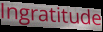
Ingratitude